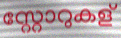
സ്റ്റോറുകള്